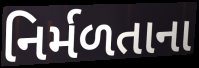
નિર્મળતાના